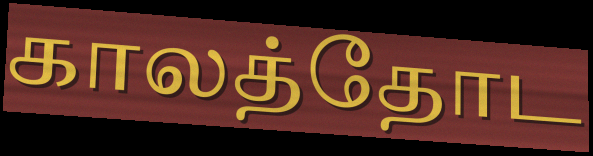
காலத்தோட